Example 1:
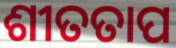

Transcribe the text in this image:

ଶୀତତାପ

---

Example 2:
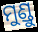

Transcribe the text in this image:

ମୁଣ୍ଡୁ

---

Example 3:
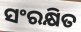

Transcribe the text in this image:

ସଂରକ୍ଷିତ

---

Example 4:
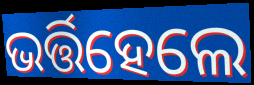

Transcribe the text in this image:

ଭର୍ତ୍ତିହେଲେ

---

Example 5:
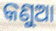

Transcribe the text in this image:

କଣୁଆ